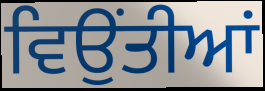
ਵਿਉਂਤੀਆਂ